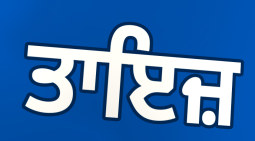
ਤਾਇਜ਼